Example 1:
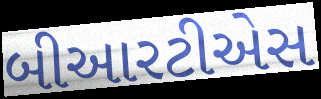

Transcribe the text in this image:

બીઆરટીએસ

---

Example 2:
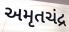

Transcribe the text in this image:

અમૃતચંદ્ર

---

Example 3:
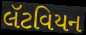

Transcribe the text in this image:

લૅટવિયન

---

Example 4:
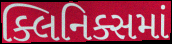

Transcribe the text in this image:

ક્લિનિક્સમાં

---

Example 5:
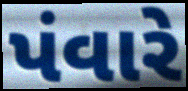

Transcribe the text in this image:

પંવારે